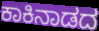
ಕಾಕಿನಾಡದ